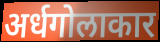
अर्धगोलाकार